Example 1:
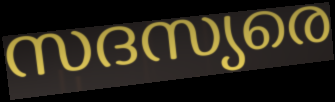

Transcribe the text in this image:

സദസ്യരെ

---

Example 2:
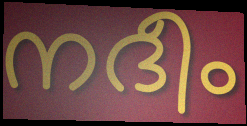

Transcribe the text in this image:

നദീം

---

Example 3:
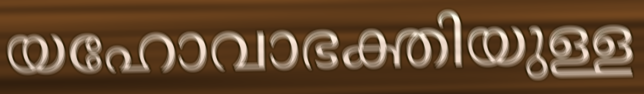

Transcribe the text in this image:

യഹോവാഭക്തിയുള്ള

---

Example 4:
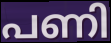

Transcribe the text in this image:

പണി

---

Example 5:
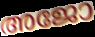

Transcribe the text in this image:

അജോ